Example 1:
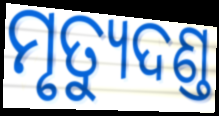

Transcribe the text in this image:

ମୃତ୍ୟୁଦଣ୍ଡ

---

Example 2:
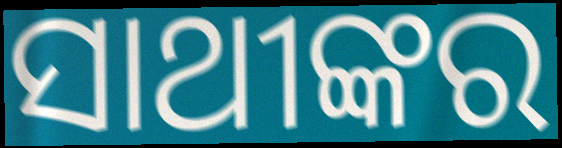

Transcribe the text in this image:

ସାଥୀଙ୍କର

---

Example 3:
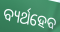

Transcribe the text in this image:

ବ୍ୟର୍ଥହେବ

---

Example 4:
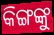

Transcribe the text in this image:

କିଙ୍ଗଙ୍କୁ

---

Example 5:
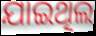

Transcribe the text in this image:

ଯାଇଥିଲ